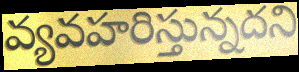
వ్యవహరిస్తున్నదని